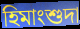
হিমাংশুদা